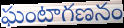
ఘంటాగణనం